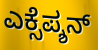
ಎಕ್ಸೆಪ್ಶನ್